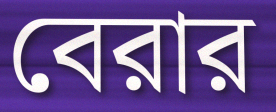
বেরার